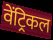
वेंट्रिकल